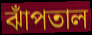
ঝাঁপতাল